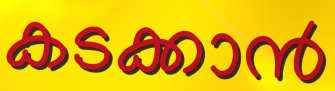
കടക്കാൻ